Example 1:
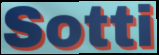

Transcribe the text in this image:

Sotti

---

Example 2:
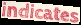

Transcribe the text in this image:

indicates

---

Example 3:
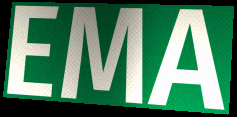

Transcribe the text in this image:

EMA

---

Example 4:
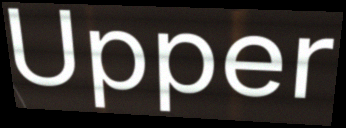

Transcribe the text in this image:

Upper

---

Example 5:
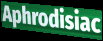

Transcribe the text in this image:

Aphrodisiac